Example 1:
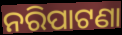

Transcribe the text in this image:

ନରିପାଟଣା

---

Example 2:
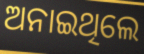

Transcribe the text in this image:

ଅନାଇଥିଲେ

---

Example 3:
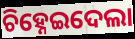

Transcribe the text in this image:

ଚିହ୍ନେଇଦେଲା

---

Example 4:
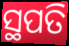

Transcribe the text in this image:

ସ୍ଥପତି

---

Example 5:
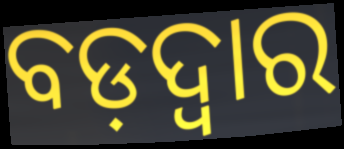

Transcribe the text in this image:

ବଡ଼ଦ୍ୱାର